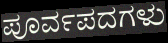
ಪೂರ್ವಪದಗಳು